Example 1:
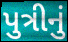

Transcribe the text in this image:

પુત્રીનું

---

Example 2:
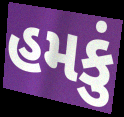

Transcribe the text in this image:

હમકું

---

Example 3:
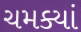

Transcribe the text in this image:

ચમક્યાં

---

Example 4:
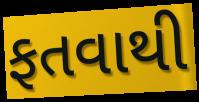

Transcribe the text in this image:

ફતવાથી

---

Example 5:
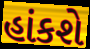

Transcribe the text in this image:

હાંકશે